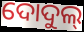
ଦୋଦୁଲ୍